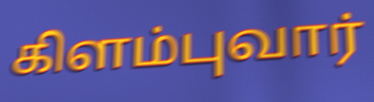
கிளம்புவார்